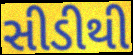
સીડીથી